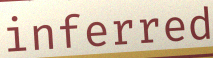
inferred